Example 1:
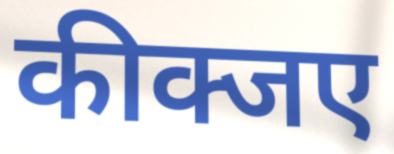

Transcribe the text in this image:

कीक्जए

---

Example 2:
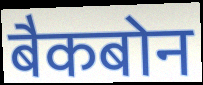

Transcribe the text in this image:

बैकबोन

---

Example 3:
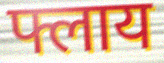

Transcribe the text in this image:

फ्लाय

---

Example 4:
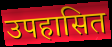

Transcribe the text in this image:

उपहासित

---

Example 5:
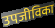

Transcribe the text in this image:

उपजीविका